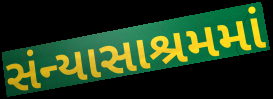
સંન્યાસાશ્રમમાં